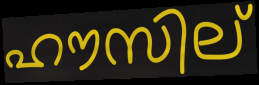
ഹൗസില്